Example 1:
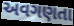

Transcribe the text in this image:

અવગણતા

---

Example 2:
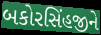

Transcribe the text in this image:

બકોરસિંહજીને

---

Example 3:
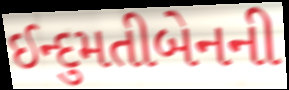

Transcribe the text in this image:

ઈન્દુમતીબેનની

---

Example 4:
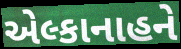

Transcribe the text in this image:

એલ્કાનાહને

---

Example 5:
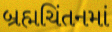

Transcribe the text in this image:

બ્રહ્મચિંતનમાં